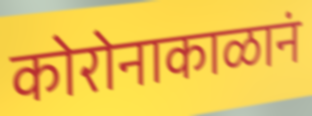
कोरोनाकाळानं